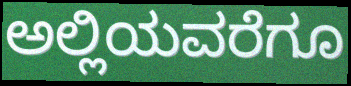
ಅಲ್ಲಿಯವರೆಗೂ